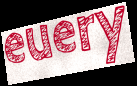
euery